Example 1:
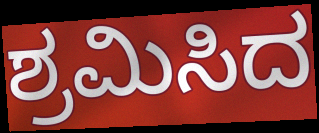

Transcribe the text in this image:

ಶ್ರಮಿಸಿದ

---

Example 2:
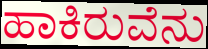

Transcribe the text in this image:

ಹಾಕಿರುವೆನು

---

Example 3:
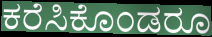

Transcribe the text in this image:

ಕರೆಸಿಕೊಂಡರೂ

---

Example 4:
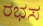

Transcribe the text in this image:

ರಭಸ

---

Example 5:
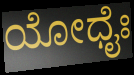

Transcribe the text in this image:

ಯೋಧೈಃ